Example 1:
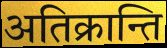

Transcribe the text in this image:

अतिक्रान्ति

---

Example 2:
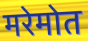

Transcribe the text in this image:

मरेमोत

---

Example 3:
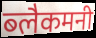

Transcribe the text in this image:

ब्‍लैकमनी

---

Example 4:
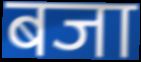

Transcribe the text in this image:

बजा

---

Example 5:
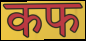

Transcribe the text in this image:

कफ